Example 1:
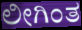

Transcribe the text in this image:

ಲೀಗಿಂತ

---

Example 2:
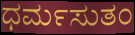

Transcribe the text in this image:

ಧರ್ಮಸುತಂ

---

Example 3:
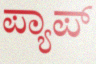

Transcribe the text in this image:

ಪ್ಯಾಪ್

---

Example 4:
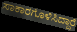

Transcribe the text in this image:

ಸಾಕಾರಗೊಳಿಸಿದ್ದಾರೆ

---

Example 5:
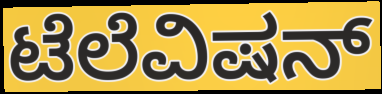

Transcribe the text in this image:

ಟೆಲೆವಿಷನ್